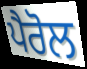
ਪੈਰੋਲ